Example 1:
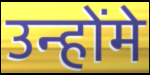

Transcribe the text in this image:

उन्होंमे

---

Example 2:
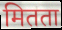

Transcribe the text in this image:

मितता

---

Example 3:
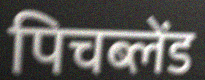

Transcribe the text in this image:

पिचब्लेंड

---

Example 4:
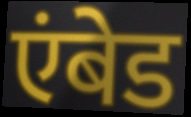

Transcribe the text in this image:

एंबेड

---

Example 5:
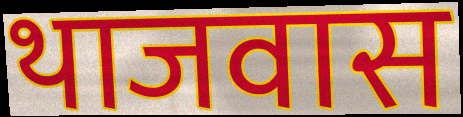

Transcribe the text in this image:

थाजवास